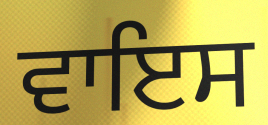
ਵਾਇਸ